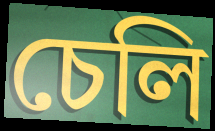
চেলি